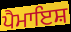
ਪੈਮਾਇਸ਼